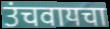
उंचवायचा